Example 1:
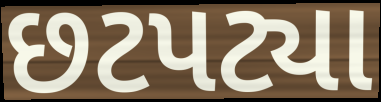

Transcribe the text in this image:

છટપટ્યા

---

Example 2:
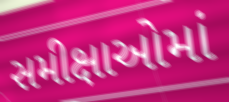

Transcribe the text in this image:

સમીક્ષાઓમાં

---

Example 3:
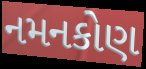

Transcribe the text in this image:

નમનકોણ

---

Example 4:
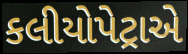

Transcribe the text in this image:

કલીયોપેટ્રાએ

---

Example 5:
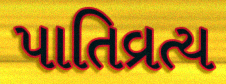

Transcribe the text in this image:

પાતિવ્રત્ય